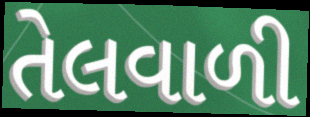
તેલવાળી